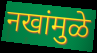
नखांमुळे